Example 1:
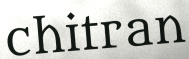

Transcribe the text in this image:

chitran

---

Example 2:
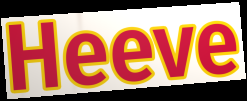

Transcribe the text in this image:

Heeve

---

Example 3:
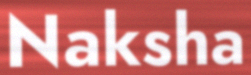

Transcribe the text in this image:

Naksha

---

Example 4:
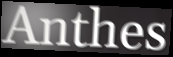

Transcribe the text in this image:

Anthes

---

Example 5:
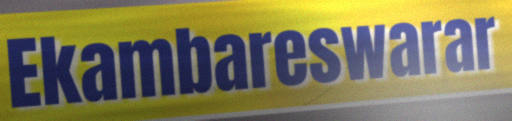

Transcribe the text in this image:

Ekambareswarar